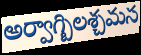
అర్వాగ్బిలశ్చమస